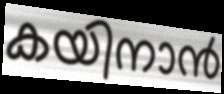
കയിനാൻ